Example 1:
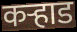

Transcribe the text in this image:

कऱ्हाड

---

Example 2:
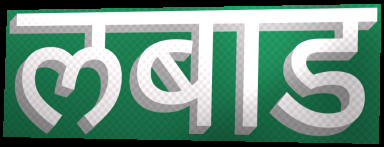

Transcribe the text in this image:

लबाड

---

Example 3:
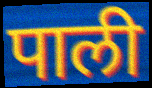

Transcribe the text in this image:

पाली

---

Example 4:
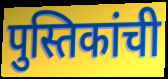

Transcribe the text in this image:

पुस्तिकांची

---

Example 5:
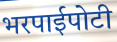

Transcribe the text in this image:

भरपाईपोटी